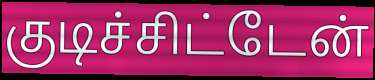
குடிச்சிட்டேன்